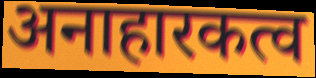
अनाहारकत्व